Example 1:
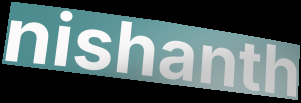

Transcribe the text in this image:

nishanth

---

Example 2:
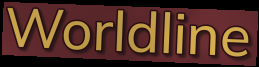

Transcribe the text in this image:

Worldline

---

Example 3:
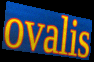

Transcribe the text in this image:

ovalis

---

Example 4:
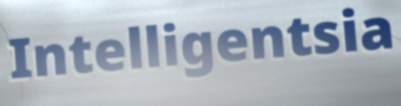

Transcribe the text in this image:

Intelligentsia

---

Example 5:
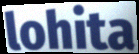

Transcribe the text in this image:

lohita